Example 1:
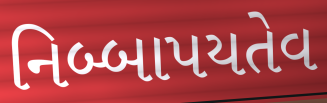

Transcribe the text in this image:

નિબ્બાપયતેવ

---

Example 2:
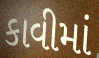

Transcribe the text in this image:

કાવીમાં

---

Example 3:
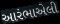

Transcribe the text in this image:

આરંભાએલી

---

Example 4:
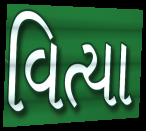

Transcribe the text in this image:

વિત્યા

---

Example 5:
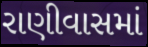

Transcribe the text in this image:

રાણીવાસમાં